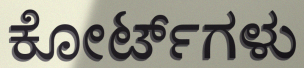
ಕೋರ್ಟ್‌ಗಳು